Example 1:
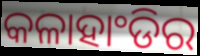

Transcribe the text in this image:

କଳାହାଂଡିର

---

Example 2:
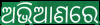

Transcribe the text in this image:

ଅଭିଆଣରେ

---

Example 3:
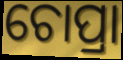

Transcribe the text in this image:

ଚୋପ୍ରା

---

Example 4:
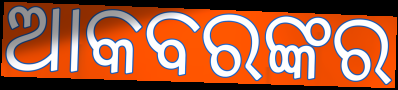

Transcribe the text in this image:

ଆକବରଙ୍କର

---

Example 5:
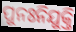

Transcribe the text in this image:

ପୁନଃନିଯୁକ୍ତି